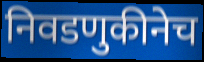
निवडणुकीनेच